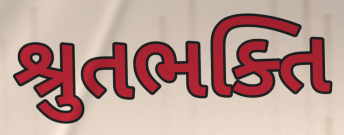
શ્રુતભક્તિ